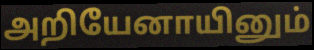
அறியேனாயினும்